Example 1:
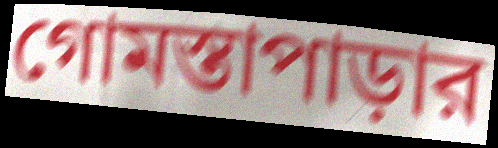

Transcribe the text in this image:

গোমস্তাপাড়ার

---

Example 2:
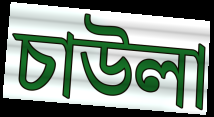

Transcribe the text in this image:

চাউলা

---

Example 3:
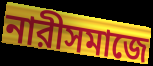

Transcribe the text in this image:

নারীসমাজে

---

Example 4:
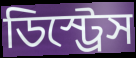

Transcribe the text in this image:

ডিস্ট্রেস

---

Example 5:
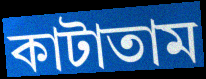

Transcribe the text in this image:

কাটাতাম